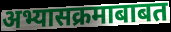
अभ्यासक्रमाबाबत